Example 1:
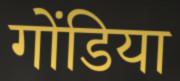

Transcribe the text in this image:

गोंडिया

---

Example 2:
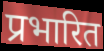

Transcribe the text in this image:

प्रभारित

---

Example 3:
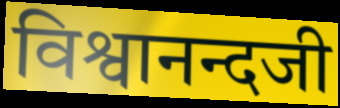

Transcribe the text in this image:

विश्वानन्दजी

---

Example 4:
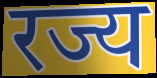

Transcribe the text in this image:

रज्य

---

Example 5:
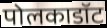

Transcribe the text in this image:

पोलकाडॉट